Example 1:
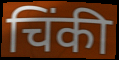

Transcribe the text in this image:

चिंकी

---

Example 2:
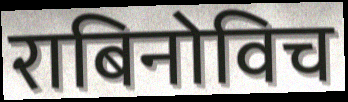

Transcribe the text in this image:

राबिनोविच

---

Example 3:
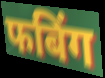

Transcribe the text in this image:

फबिंग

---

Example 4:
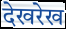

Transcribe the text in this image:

देखरेख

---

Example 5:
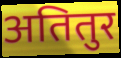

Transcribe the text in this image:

अतितुर